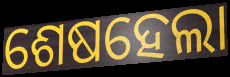
ଶେଷହେଲା